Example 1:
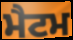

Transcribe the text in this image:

ਮੈਟਮ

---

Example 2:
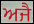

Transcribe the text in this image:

ਅਜੈ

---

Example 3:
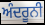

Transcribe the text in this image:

ਅੰਦਰੂਨੀ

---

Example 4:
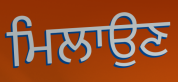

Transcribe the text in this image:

ਮਿਲਾਉਣ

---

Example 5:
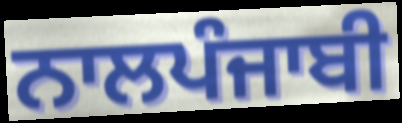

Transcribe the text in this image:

ਨਾਲਪੰਜਾਬੀ